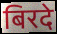
बिरदे